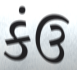
કંઉ